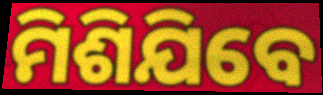
ମିଶିଯିବେ